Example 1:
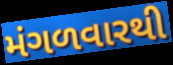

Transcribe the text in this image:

મંગળવારથી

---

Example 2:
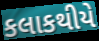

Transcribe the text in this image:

કલાકથીયે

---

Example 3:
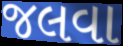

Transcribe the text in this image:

જલવા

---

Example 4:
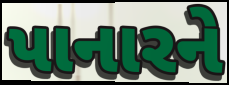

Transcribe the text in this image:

પાનારને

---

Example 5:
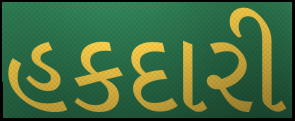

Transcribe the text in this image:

હકદારી